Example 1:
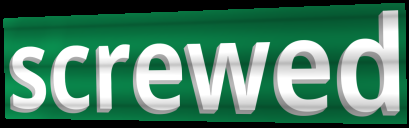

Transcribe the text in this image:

screwed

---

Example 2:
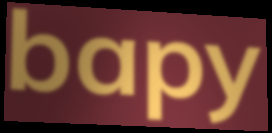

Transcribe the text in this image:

bapy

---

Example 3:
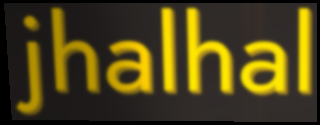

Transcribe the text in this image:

jhalhal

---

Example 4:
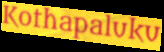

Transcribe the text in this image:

Kothapaluku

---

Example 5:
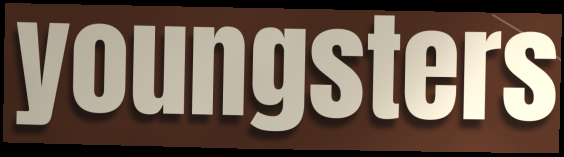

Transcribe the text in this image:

youngsters